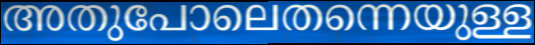
അതുപോലെതന്നെയുള്ള